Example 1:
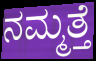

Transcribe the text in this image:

ನಮ್ಮತ್ತೆ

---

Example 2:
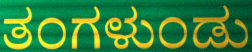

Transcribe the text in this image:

ತಂಗಳುಂಡು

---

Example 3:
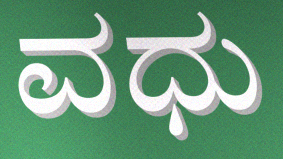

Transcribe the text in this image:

ವಧು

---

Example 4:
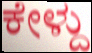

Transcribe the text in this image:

ಕೇಳ್ದು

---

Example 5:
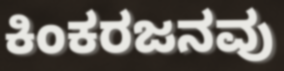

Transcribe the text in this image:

ಕಿಂಕರಜನವು